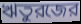
ঋতুরজের